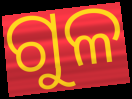
ଗୁଳ